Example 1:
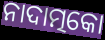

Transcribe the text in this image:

ନାଦାତ୍ମକୋ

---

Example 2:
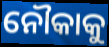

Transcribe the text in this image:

ନୌକାକୁ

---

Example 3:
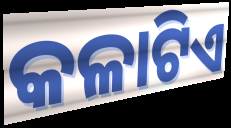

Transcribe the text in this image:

କଳାଟିଏ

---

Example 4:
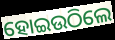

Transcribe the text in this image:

ହୋଇଉଠିଲେ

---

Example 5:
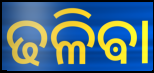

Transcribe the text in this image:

ଢଳିଵା